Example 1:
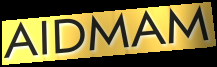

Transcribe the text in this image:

AIDMAM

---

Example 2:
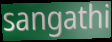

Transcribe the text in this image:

sangathi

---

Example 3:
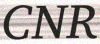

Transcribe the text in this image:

CNR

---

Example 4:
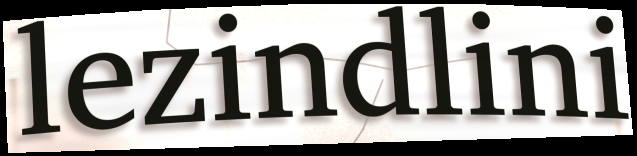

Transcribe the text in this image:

lezindlini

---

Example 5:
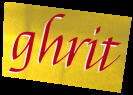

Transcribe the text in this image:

ghrit